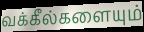
வக்கீல்களையும்